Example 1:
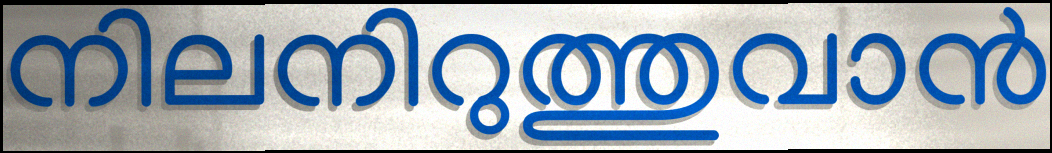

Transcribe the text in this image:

നിലനിറുത്തുവാൻ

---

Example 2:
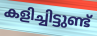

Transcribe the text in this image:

കളിച്ചിട്ടുണ്ട്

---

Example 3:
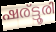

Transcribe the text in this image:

ഷര്ട്ടൂരി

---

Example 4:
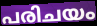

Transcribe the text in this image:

പരിചയം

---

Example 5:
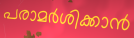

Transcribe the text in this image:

പരാമർശിക്കാൻ